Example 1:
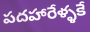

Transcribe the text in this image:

పదహారేళ్ళకే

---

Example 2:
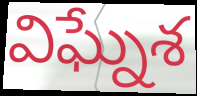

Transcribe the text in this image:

విఘ్నేశ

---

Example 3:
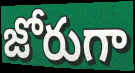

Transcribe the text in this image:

జోరుగా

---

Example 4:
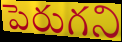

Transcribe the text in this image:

పెరుగని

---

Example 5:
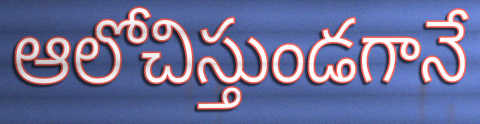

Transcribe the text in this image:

ఆలోచిస్తుండగానే